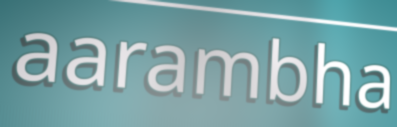
aarambha